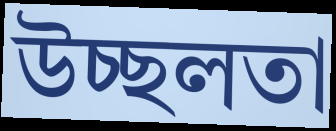
উচ্ছলতা